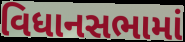
વિધાનસભામાં